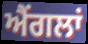
ਐਂਗਲਾਂ